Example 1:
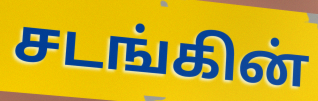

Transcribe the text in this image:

சடங்கின்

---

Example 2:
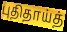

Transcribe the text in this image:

புதிதாய்த்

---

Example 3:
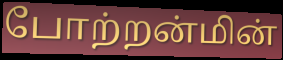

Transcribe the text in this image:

போற்றன்மின்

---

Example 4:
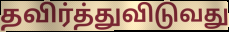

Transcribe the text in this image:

தவிர்த்துவிடுவது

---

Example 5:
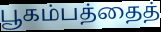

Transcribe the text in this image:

பூகம்பத்தைத்